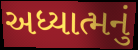
અધ્યાત્મનું